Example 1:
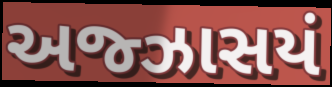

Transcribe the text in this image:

અજ્ઝાસયં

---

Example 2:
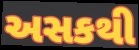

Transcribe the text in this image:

અસકથી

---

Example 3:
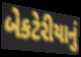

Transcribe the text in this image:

બેકટેરીયાનું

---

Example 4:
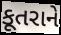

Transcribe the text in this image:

કૂતરાને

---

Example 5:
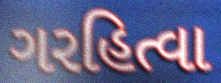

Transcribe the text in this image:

ગરહિત્વા